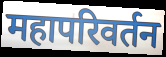
महापरिवर्तन